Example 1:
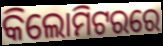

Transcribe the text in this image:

କିଲୋମିଟରରେ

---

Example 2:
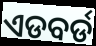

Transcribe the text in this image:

ଏଡବର୍ଡ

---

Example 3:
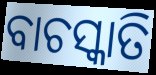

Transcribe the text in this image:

ବାଚସ୍କାତି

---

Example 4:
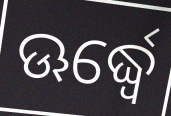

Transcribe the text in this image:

ଊର୍ଦ୍ଧ୍ୱେ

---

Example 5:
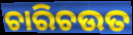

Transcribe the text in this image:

ଚାରିଚଉତ